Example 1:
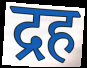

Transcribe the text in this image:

द्रह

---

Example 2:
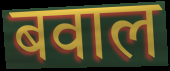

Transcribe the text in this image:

बवाल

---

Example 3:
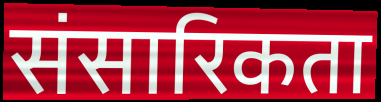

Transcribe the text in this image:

संसारिकता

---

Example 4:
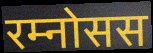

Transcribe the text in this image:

रम्नोसस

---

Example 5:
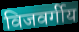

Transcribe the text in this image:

विजवर्गीय